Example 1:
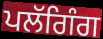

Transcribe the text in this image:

ਪਲੱਗਿੰਗ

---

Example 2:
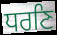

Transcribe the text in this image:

ਧਰਣਿ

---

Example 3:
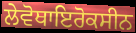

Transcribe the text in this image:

ਲੇਵੋਥਾਇਰੋਕਸੀਨ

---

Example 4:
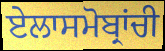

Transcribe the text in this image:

ਏਲਾਸਮੋਬ੍ਰਾਂਚੀ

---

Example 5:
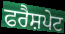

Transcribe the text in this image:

ਫਰੈਸ਼ਪੇਟ